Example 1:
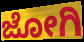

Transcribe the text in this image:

ಜೋಗಿ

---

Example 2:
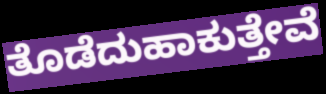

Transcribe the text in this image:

ತೊಡೆದುಹಾಕುತ್ತೇವೆ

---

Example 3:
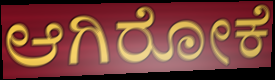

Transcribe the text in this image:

ಆಗಿರೋಕೆ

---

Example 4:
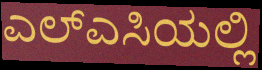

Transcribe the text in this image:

ಎಲ್ಎಸಿಯಲ್ಲಿ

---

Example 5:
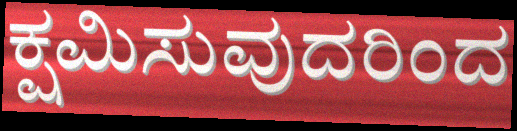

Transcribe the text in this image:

ಕ್ಷಮಿಸುವುದರಿಂದ